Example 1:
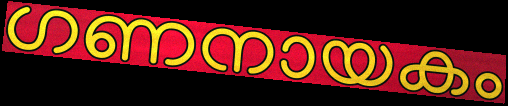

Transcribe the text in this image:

ഗണനായകം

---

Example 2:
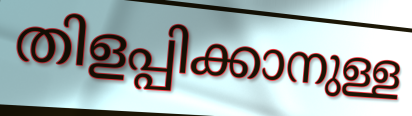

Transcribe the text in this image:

തിളപ്പിക്കാനുള്ള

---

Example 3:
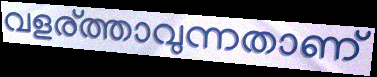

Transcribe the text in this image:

വളര്ത്താവുന്നതാണ്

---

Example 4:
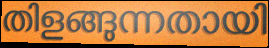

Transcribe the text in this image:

തിളങ്ങുന്നതായി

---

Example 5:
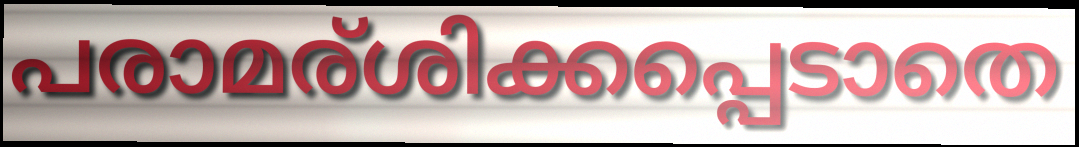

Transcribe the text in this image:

പരാമര്ശിക്കപ്പെടാതെ